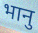
भानु